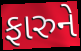
ફારુને